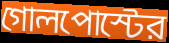
গোলপোস্টের